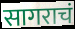
सागराचं